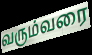
வரும்வரை